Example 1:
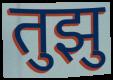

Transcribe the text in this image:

तुझु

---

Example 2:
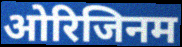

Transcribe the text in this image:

ओरिजिनम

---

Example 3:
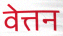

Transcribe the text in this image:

वेत्तन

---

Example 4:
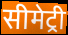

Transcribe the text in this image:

सीमेट्री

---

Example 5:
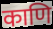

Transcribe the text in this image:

काणि